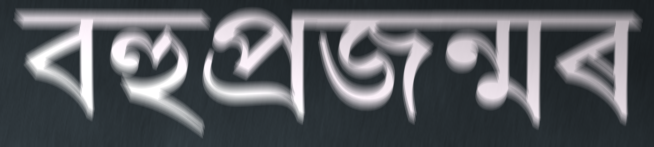
বহুপ্ৰজন্মৰ